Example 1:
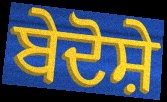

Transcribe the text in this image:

ਬੇਦੋਸ਼ੇ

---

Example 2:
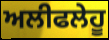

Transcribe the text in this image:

ਅਲੀਫਲੇਹੂ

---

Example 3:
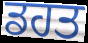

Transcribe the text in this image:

ਡਹਤ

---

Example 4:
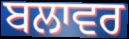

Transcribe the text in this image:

ਬਲਾਵਰ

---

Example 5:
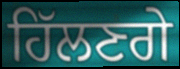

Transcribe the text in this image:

ਹਿੱਲਣਗੇ